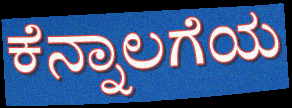
ಕೆನ್ನಾಲಗೆಯ